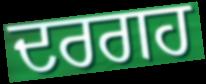
ਦਰਗਹ